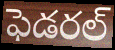
ఫెడరల్